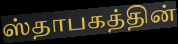
ஸ்தாபகத்தின்